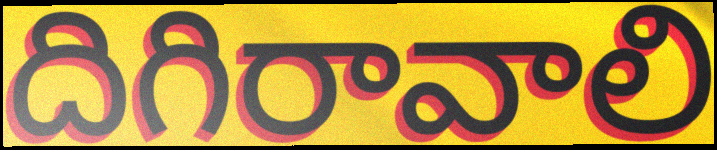
దిగిరావాలి